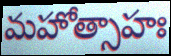
మహోత్సాహః